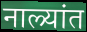
नाल्यांत